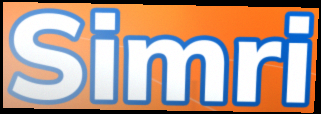
Simri